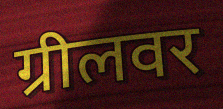
ग्रीलवर